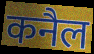
कनैल